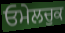
ਓਮੇਲਚੁਕ